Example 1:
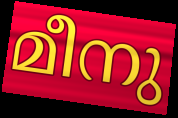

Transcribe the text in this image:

മീനു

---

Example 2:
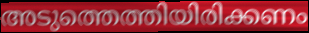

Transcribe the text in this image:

അടുത്തെത്തിയിരിക്കണം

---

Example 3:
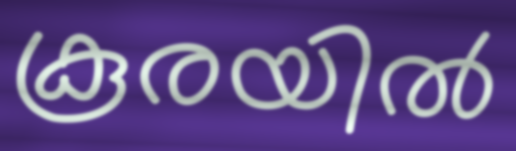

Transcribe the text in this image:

കൂരയിൽ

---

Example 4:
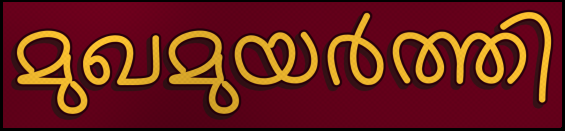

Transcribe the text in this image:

മുഖമുയർത്തി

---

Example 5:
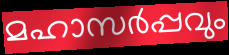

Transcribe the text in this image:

മഹാസർപ്പവും